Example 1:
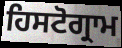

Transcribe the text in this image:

ਹਿਸਟੋਗ੍ਰਾਮ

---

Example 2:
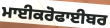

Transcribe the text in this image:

ਮਾਈਕਰੋਫਾਈਬਰ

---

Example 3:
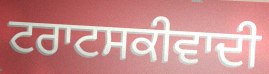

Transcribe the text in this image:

ਟਰਾਟਸਕੀਵਾਦੀ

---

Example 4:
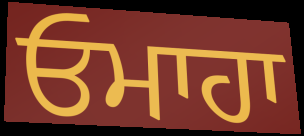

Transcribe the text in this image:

ਓਮਾਹਾ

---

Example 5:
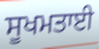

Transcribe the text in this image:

ਸੂਖਮਤਾਈ